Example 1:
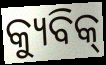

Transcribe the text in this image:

କ୍ୟୁବିକ୍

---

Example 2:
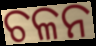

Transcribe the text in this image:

ଚଳନ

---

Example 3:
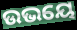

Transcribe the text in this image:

ଉଭୟେ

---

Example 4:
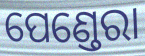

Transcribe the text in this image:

ପେଣ୍ଡେରା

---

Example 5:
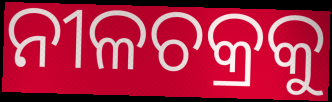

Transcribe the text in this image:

ନୀଳଚକ୍ରକୁ